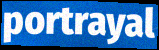
portrayal